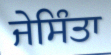
ਜੇਸਿੰਤਾ